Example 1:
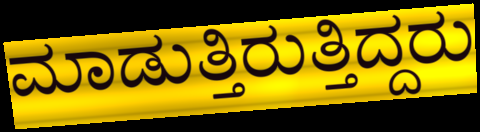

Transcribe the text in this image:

ಮಾಡುತ್ತಿರುತ್ತಿದ್ದರು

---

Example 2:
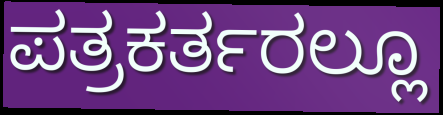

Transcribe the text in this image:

ಪತ್ರಕರ್ತರಲ್ಲೂ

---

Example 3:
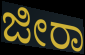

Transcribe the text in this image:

ಜೀರಾ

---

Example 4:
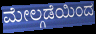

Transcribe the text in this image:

ಮೇಲ್ಗಡೆಯಿಂದ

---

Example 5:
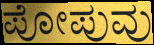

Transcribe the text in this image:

ಪೋಪುವು